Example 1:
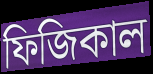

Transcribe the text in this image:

ফিজিকাল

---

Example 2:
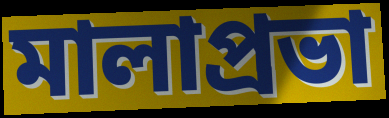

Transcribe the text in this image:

মালাপ্রভা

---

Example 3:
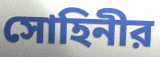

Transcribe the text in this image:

সোহিনীর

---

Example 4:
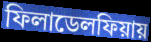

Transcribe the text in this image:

ফিলাডেলফিয়ায়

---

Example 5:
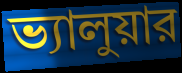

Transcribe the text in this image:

ভ্যালুয়ার